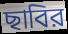
ছাবির